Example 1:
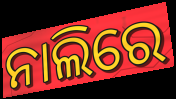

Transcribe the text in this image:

ନାଲିରେ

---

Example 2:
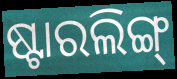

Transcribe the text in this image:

ଷ୍ଟାରଲିଙ୍ଗ୍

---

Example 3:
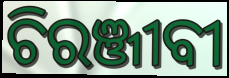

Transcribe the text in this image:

ଚିରଞ୍ଜୀବୀ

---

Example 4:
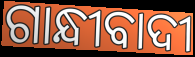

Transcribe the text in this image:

ଗାନ୍ଧୀବାଦୀ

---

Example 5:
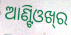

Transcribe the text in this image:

ଆଣ୍ଟିଓଖ୍‍ର